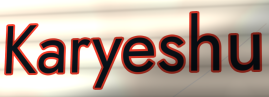
Karyeshu